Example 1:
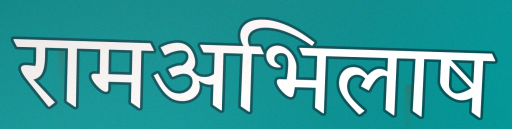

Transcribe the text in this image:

रामअभिलाष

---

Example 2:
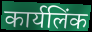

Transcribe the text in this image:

कार्यलिंक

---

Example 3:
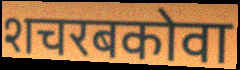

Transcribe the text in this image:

शचरबकोवा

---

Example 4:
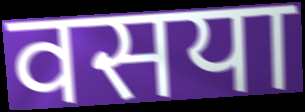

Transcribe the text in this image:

वसया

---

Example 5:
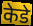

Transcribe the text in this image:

केडे